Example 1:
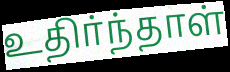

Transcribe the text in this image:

உதிர்ந்தாள்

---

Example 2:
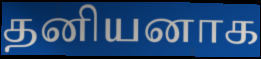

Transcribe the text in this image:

தனியனாக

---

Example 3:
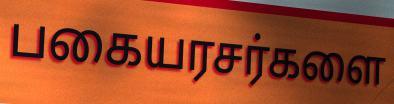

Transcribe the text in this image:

பகையரசர்களை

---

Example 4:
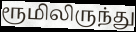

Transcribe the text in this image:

ரூமிலிருந்து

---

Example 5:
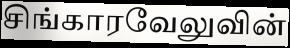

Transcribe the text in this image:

சிங்காரவேலுவின்